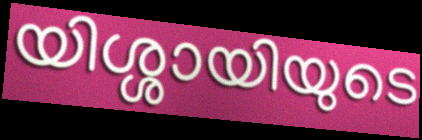
യിശ്ശായിയുടെ